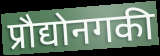
प्रौद्योनगकी